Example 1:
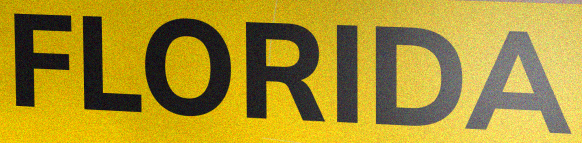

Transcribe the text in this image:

FLORIDA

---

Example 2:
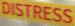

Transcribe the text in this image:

DISTRESS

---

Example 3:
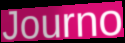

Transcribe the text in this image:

Journo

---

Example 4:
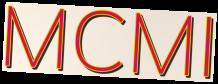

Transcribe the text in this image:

MCMI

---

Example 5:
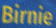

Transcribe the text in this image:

Birnie